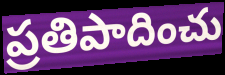
ప్రతిపాదించు